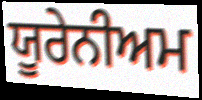
ਯੂਰੇਨੀਅਮ